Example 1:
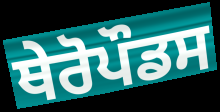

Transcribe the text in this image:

ਥੇਰੋਪੌਡਸ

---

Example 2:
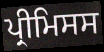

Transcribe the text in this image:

ਪ੍ਰੀਮਿਸਸ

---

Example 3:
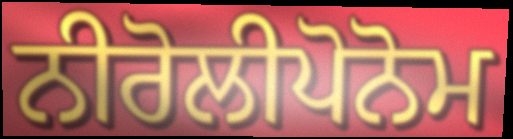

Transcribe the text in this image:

ਨੀਰੋਲੀਪੋਨੋਮ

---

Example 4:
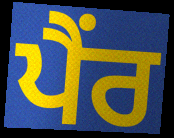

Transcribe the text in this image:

ਪੈਂਰ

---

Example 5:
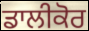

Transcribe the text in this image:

ਡਾਲੀਕੋਰ